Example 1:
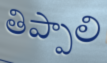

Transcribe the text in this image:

తిప్పాలి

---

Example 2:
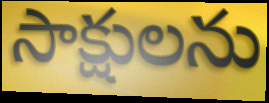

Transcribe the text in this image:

సాక్షులను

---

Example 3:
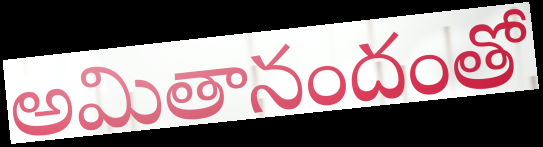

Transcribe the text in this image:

అమితానందంతో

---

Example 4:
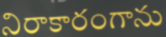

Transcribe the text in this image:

నిరాకారంగాను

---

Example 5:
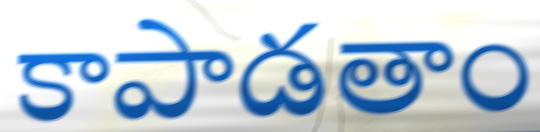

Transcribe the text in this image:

కాపాడతాం